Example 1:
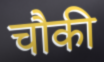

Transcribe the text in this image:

चौकी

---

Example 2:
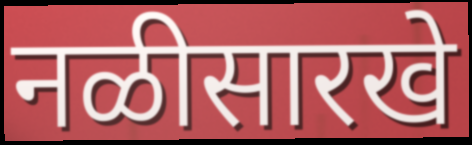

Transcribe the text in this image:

नळीसारखे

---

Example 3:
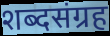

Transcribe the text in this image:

शब्दसंग्रह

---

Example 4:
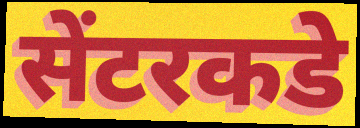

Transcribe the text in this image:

सेंटरकडे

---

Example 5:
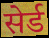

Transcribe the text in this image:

सेर्ड